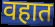
वहात